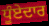
ਧੂੰਏਦਾਰ